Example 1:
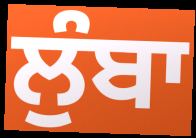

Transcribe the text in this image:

ਲੁੰਬਾ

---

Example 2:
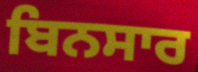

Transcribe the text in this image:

ਬਿਨਸਾਰ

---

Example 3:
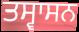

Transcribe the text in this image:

ਤਸ੍ਵਾਸਨ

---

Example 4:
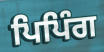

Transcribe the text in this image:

ਪਿਪਿੰਗ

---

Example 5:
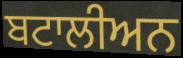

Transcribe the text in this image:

ਬਟਾਲੀਅਨ